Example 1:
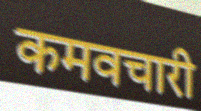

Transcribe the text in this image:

कमवचारी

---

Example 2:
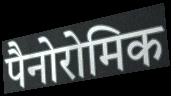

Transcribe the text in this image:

पैनोरोमिक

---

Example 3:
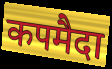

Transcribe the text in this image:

कपमैदा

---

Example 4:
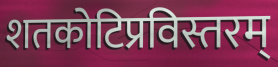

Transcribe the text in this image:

शतकोटिप्रविस्तरम्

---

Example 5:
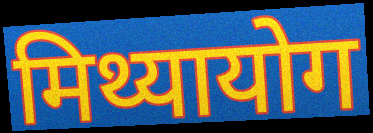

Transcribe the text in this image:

मिथ्यायोग